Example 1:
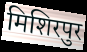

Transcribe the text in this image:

मिशिरपुर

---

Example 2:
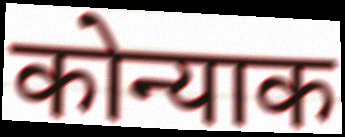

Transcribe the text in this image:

कोन्याक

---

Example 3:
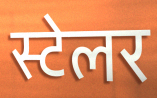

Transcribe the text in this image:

स्टेलर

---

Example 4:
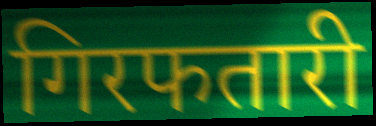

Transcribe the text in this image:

गिरफतारी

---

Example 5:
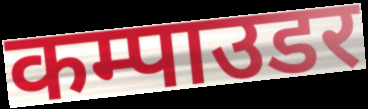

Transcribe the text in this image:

कम्पाउडर